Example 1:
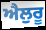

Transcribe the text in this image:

ਐਲੁਰੂ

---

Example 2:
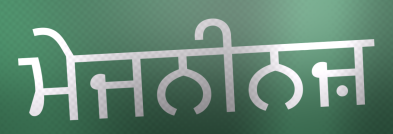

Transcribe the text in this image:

ਮੇਜਨੀਨਜ਼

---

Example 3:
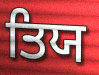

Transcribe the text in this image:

ਤਿਯ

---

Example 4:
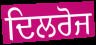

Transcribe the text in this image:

ਦਿਲਰੋਜ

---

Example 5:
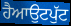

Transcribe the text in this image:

ਹੈਆਉਟਪੁੱਟ